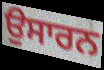
ਉਸਾਰਨ